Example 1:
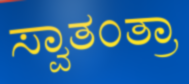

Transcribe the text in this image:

ಸ್ವಾತಂತ್ರಾ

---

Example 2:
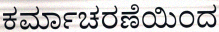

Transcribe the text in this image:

ಕರ್ಮಾಚರಣೆಯಿಂದ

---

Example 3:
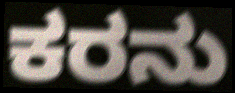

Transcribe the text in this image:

ಕರನು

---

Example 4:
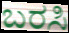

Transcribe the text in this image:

ಬರಸಿ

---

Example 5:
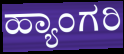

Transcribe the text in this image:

ಹ್ಯಾಂಗರಿ